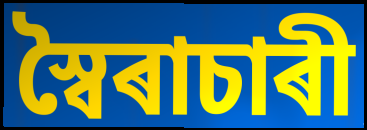
স্বৈৰাচাৰী